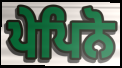
ਪੇਪਿਨੋ